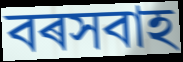
বৰসবাহ